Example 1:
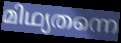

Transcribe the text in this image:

മിഥ്യതന്നെ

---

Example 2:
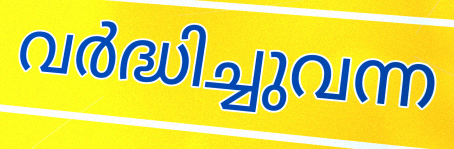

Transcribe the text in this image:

വർദ്ധിച്ചുവന്ന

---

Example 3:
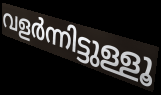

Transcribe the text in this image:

വളർന്നിട്ടുള്ളൂ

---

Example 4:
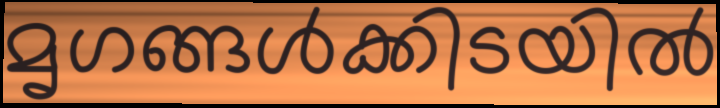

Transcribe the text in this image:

മൃഗങ്ങൾക്കിടയിൽ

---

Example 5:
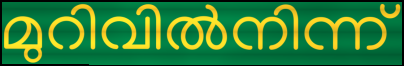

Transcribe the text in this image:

മുറിവിൽനിന്ന്